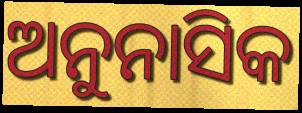
ଅନୁନାସିକ